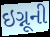
ઇગ્નૂની